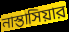
নাস্তাসিয়ার